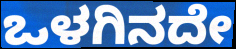
ಒಳಗಿನದೇ